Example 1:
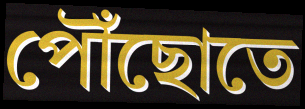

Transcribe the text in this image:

পৌঁছোতে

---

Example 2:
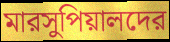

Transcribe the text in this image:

মারসুপিয়ালদের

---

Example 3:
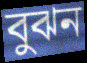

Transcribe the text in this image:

বুঝন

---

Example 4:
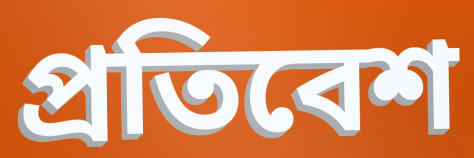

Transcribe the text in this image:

প্রতিবেশ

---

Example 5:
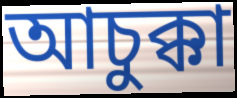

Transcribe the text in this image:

আচুক্কা